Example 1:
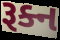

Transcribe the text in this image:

રૂક્ન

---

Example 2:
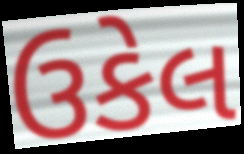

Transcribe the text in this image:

ઉકેલ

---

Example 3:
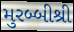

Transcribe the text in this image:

મુરબ્બીશ્રી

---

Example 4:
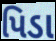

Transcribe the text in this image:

પિડા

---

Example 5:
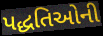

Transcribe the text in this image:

પદ્ધતિઓની